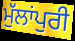
ਮੁੱਲਾਂਪੁਰੀ